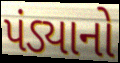
પંડ્યાનો